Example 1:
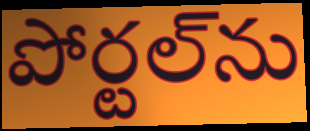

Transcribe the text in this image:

పోర్టల్‌ను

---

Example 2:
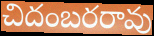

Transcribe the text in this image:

చిదంబరరావు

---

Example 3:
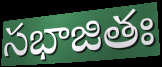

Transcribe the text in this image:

సభాజితః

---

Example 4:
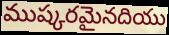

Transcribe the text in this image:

ముష్కరమైనదియు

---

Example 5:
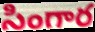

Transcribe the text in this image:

సింగార